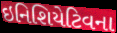
ઇનિશિયેટિવના